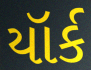
યૉર્ક